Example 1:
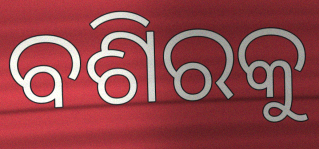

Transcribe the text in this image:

ବଶିରକୁ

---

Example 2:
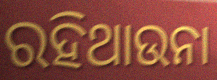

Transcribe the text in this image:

ରହିଥାଉନା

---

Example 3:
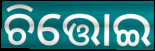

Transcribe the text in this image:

ଚିତ୍ତୋଇ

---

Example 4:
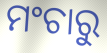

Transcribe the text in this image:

ମଂଚାରୁ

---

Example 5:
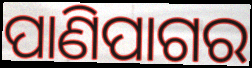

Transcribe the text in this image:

ପାଣିପାଗର